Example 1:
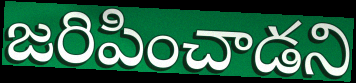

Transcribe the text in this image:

జరిపించాడని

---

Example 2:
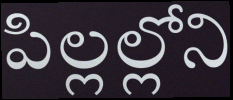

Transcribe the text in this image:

పిల్లల్లోని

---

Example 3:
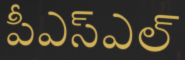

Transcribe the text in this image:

పీఎస్ఎల్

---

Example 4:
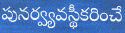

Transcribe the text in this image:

పునర్వ్యవస్థీకరించే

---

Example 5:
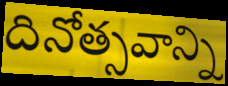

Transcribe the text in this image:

దినోత్సవాన్ని